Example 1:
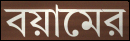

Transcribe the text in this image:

বয়ামের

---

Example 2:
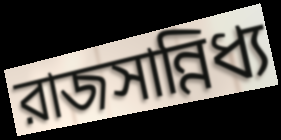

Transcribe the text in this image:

রাজসান্নিধ্য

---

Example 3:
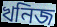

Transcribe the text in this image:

খনিজ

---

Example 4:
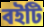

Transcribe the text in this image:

বইটি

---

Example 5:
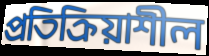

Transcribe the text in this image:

প্রতিক্রিয়াশীল